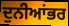
ਦੁਨੀਆਂਭਰ